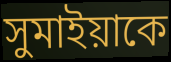
সুমাইয়াকে